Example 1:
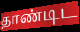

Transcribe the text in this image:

தாண்டிட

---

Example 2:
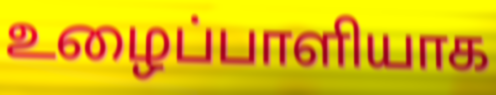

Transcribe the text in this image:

உழைப்பாளியாக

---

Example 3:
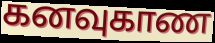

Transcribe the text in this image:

கனவுகாண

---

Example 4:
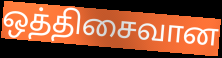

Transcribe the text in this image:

ஒத்திசைவான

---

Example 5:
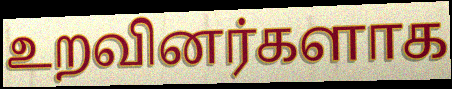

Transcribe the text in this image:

உறவினர்களாக